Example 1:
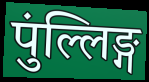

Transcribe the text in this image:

पुंल्लिङ्ग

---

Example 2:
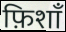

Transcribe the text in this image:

फ़िशाँ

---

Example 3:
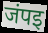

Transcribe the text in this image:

जंपइ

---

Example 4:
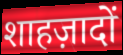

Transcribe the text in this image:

शाहज़ादों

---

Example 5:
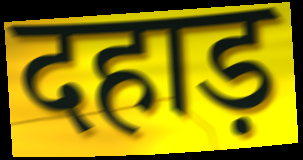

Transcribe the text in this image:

दहाड़